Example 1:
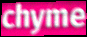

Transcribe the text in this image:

chyme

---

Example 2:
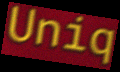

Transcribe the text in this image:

Uniq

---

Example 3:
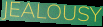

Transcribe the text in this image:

JEALOUSY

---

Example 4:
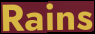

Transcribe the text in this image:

Rains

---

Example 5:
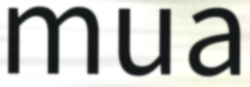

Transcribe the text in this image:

mua